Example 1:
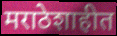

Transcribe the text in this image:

मराठेशाहीत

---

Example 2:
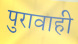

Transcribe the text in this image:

पुरावाही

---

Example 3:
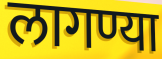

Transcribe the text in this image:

लागण्या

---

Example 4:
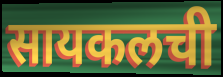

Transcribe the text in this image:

सायकलची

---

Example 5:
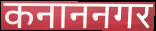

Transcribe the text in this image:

कनाननगर